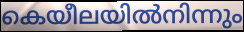
കെയീലയിൽനിന്നും